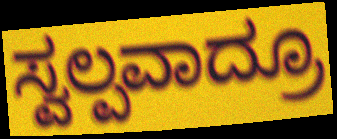
ಸ್ವಲ್ಪವಾದ್ರೂ